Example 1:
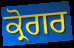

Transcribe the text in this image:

ਕ੍ਰੋਗਰ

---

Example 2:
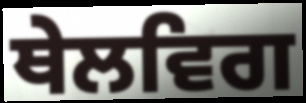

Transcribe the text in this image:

ਥੇਲਵਿਗ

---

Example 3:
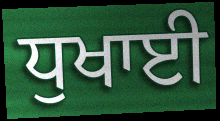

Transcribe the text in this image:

ਧੁਖਾਈ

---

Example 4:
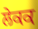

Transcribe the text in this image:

ਲੇਕਕ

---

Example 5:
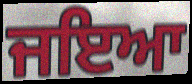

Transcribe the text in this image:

ਜਇਆ